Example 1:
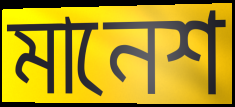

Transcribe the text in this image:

মানেশ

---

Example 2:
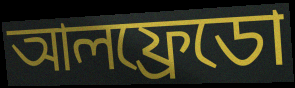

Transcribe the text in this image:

আলফ্রেডো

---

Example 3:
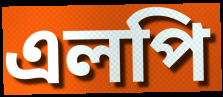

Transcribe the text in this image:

এলপি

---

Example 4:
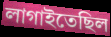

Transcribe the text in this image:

লাগাইতেছিল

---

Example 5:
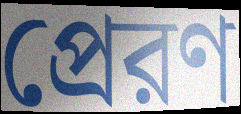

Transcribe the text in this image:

প্রেরণ